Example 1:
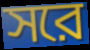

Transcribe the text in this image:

সরে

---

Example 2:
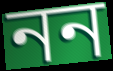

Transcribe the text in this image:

নন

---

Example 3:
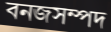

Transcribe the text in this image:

বনজসম্পদ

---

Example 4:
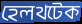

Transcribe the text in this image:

হেলথটেক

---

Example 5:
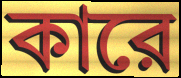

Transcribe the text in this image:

কারে